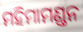
ମହିମାମଣ୍ଡନ